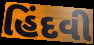
હિંદવી